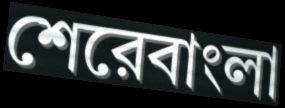
শেরেবাংলা